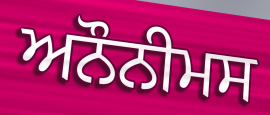
ਅਨੌਨੀਮਸ